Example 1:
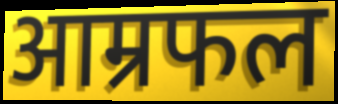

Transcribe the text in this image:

आम्रफल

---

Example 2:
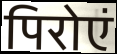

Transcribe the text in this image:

पिरोएं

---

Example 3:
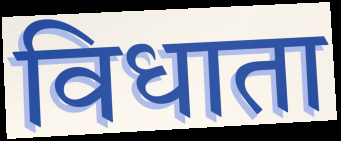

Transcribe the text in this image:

विधाता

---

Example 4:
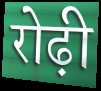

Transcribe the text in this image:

रोढ़ी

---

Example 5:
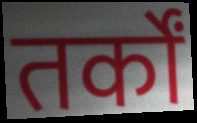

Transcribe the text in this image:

तर्कों